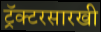
ट्रॅक्टरसारखी